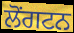
ਲੋਂਗਟਨ